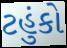
ટહુંકો